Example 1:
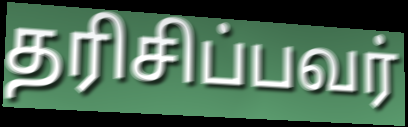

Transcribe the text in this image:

தரிசிப்பவர்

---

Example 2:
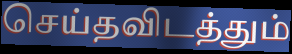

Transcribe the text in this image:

செய்தவிடத்தும்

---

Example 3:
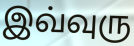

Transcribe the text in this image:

இவ்வுரு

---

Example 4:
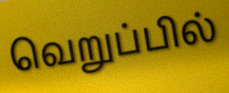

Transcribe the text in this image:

வெறுப்பில்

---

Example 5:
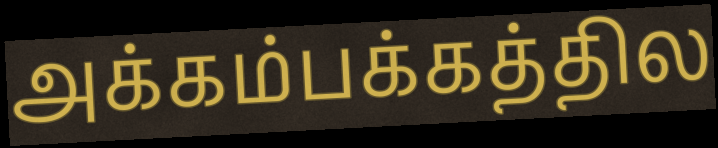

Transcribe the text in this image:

அக்கம்பக்கத்தில